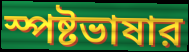
স্পষ্টভাষার